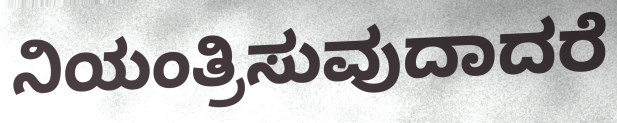
ನಿಯಂತ್ರಿಸುವುದಾದರೆ